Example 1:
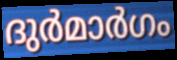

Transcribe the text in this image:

ദുർമാർഗം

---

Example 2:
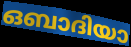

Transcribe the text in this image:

ഒബാദിയാ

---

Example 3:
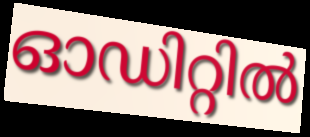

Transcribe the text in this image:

ഓഡിറ്റിൽ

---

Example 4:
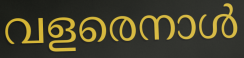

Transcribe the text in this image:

വളരെനാൾ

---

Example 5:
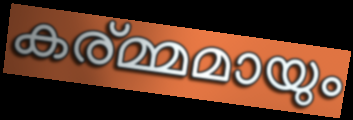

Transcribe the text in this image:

കര്മ്മമായും